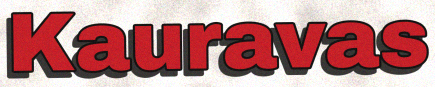
Kauravas